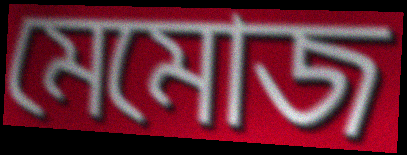
মেমোজ